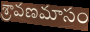
శ్రావణమాసం